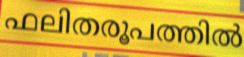
ഫലിതരൂപത്തിൽ